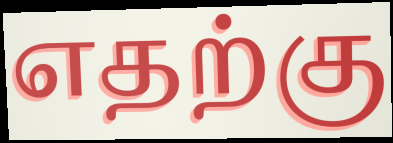
எதற்கு